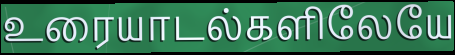
உரையாடல்களிலேயே